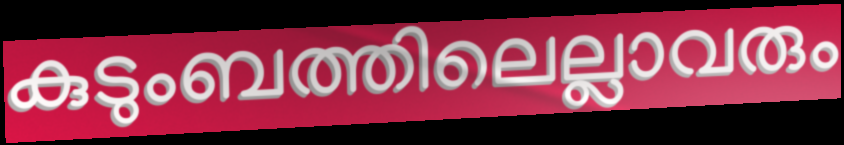
കുടുംബത്തിലെല്ലാവരും